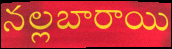
నల్లబారాయి